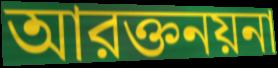
আরক্তনয়না